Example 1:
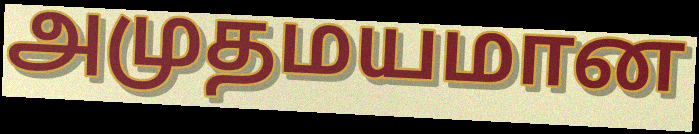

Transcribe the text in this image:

அமுதமயமான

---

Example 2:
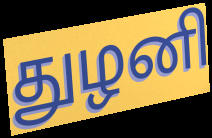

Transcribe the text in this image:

துழனி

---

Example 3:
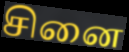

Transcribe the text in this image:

சினை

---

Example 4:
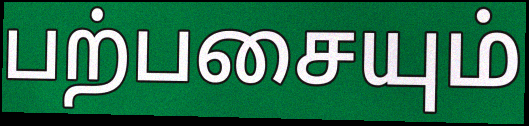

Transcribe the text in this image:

பற்பசையும்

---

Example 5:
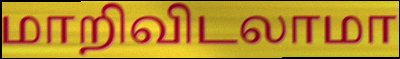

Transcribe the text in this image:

மாறிவிடலாமா